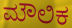
ಮೌಲಿಕ